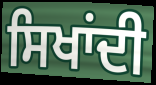
ਸਿਖਾਂਦੀ